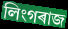
লিংগৰাজ